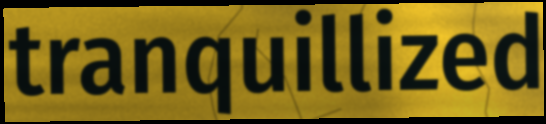
tranquillized